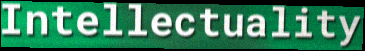
Intellectuality